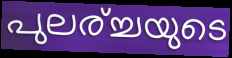
പുലര്ച്ചയുടെ